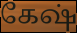
கேஷ்